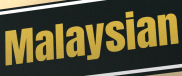
Malaysian